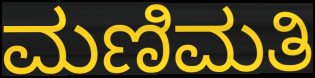
ಮಣಿಮತಿ